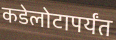
कडेलोटापर्यंत